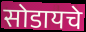
सोडायचे